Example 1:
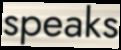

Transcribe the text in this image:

speaks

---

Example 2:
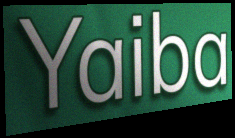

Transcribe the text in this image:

Yaiba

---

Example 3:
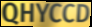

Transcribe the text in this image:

QHYCCD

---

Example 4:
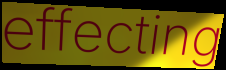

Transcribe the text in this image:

effecting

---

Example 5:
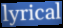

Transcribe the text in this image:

lyrical